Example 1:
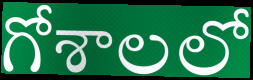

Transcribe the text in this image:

గోశాలలో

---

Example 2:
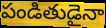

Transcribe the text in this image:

పండితుడైనా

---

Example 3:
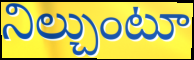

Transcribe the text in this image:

నిల్చుంటూ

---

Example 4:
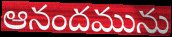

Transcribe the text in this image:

ఆనందమును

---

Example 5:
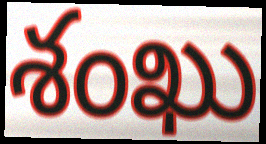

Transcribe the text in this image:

శంఖు